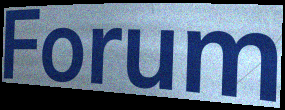
Forum